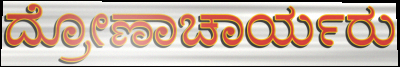
ದ್ರೋಣಾಚಾರ್ಯರು